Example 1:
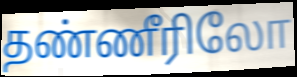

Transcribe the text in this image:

தண்ணீரிலோ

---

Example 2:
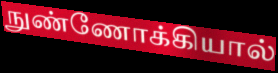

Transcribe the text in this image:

நுண்ணோக்கியால்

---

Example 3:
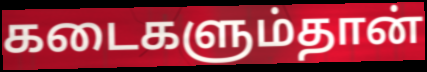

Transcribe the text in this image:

கடைகளும்தான்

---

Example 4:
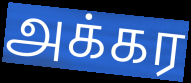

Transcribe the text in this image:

அக்கர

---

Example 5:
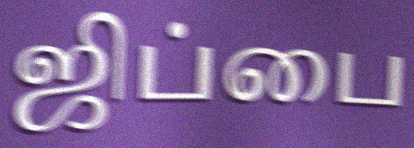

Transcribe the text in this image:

ஜிப்பை